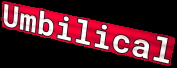
Umbilical